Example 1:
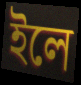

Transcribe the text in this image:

ইলে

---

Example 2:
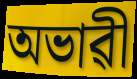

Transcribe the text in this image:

অভাৱী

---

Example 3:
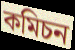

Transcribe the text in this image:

কমিচন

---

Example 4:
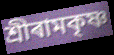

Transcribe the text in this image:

শ্ৰীৰামকৃষ্ণ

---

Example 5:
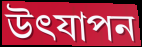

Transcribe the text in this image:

উৎযাপন